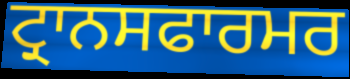
ਟ੍ਰਾਨਸਫਾਰਮਰ